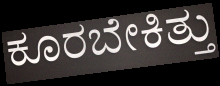
ಕೂರಬೇಕಿತ್ತು